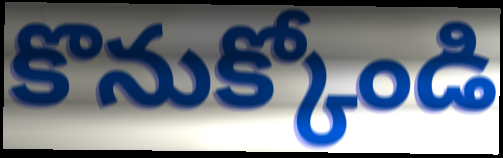
కొనుక్కోండి